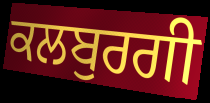
ਕਲਬੁਰਗੀ